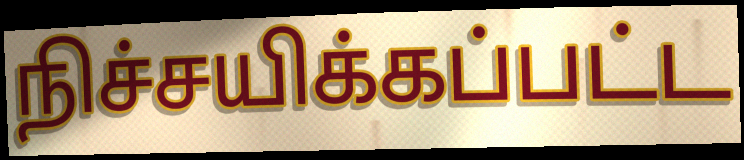
நிச்சயிக்கப்பட்ட